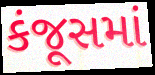
કંજૂસમાં